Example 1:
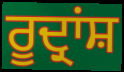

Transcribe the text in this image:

ਰੂਦ੍ਰਾਂਸ਼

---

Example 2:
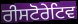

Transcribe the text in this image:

ਰੀਸਟੋਰੇਟਿਵ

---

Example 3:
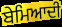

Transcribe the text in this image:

ਬੇਮਿਆਦੀ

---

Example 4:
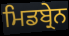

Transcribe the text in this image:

ਮਿਡਬ੍ਰੇਨ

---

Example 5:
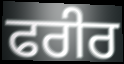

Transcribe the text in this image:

ਫਰੀਰ